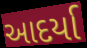
આદર્યા